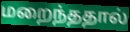
மறைந்ததால்